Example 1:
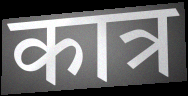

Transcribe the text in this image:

कात्र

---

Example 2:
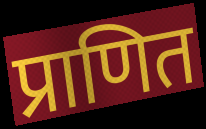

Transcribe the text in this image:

प्राणित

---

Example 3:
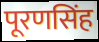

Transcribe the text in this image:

पूरणसिंह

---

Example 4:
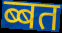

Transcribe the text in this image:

ब्बत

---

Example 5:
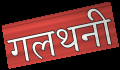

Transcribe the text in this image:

गलथनी